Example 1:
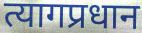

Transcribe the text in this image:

त्यागप्रधान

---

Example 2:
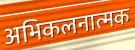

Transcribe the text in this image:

अभिकलनात्मक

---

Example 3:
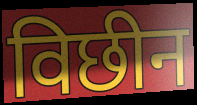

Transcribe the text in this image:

विछीन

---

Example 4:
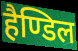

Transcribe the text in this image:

हैण्डिल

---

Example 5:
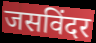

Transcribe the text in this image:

जसविंदर